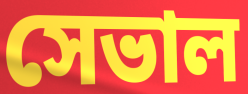
সেভাল